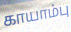
காயாம்பு